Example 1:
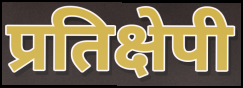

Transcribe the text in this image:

प्रतिक्षेपी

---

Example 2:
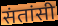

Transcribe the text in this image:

संतांसी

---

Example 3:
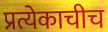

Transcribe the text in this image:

प्रत्येकाचीच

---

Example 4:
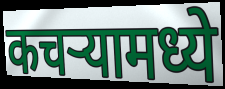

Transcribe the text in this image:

कचऱ्यामध्ये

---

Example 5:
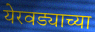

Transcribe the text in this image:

येरवड्याच्या